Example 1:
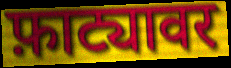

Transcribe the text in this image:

फ़ाट्यावर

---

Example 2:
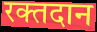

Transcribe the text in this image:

रक्तदान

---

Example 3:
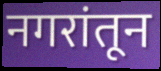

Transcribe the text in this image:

नगरांतून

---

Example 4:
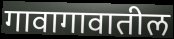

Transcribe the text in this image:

गावागावातील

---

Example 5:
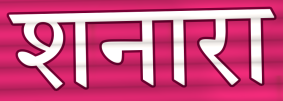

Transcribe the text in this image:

शनारा